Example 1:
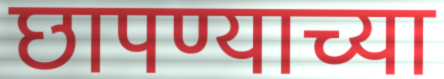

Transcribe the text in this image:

छापण्याच्या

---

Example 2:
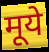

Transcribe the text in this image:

मूये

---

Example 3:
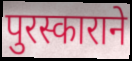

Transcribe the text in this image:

पुरस्काराने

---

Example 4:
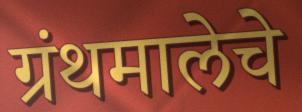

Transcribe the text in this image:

ग्रंथमालेचे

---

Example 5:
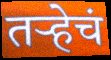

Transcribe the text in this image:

तर्‍हेचं